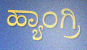
ಹ್ಯಾಂಗ್ರಿ